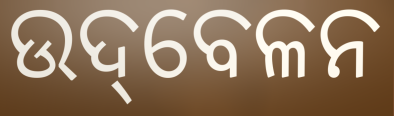
ଉଦ୍‌ବେଳନ